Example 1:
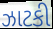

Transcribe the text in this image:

ઝાટકી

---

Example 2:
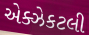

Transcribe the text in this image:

એક્ઝેકટલી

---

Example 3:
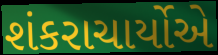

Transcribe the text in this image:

શંકરાચાર્યોએ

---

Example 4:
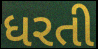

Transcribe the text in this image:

ધરતી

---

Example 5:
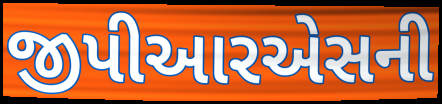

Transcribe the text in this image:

જીપીઆરએસની